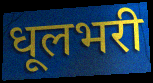
धूलभरी